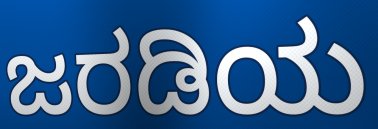
ಜರಡಿಯ